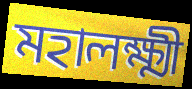
মহালক্ষ্মী